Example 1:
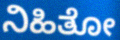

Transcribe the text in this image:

ನಿಹಿತೋ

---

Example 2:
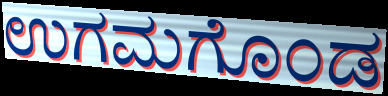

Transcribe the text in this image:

ಉಗಮಗೊಂಡ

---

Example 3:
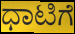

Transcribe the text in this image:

ಧಾಟಿಗೆ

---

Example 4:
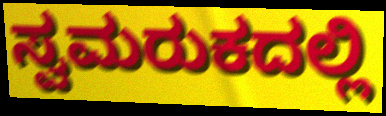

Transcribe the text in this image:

ಸ್ವಮರುಕದಲ್ಲಿ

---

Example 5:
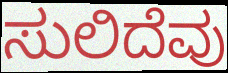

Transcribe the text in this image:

ಸುಲಿದೆವು